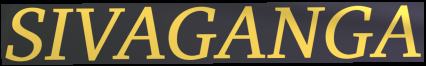
SIVAGANGA